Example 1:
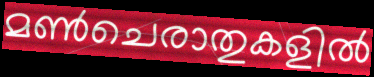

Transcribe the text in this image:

മൺചെരാതുകളിൽ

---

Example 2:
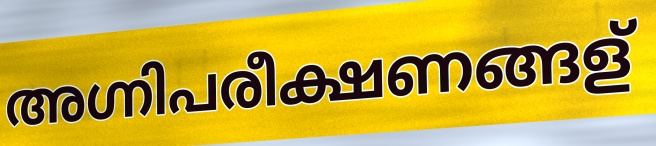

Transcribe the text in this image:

അഗ്നിപരീക്ഷണങ്ങള്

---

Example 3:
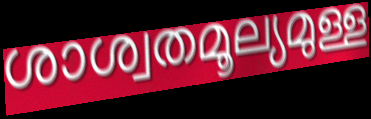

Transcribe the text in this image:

ശാശ്വതമൂല്യമുള്ള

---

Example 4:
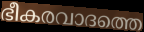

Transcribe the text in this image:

ഭീകരവാദത്തെ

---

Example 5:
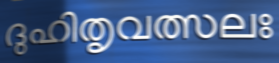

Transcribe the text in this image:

ദുഹിതൃവത്സലഃ